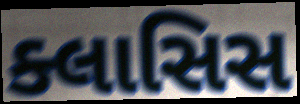
ક્લાસિસ